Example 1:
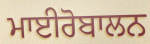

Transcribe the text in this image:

ਮਾਈਰੋਬਾਲਨ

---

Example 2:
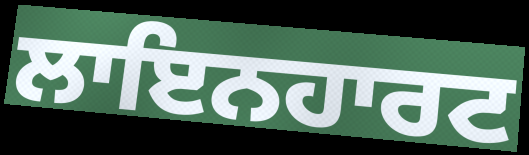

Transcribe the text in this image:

ਲਾਇਨਹਾਰਟ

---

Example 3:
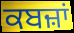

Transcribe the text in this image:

ਕਬਜ਼ਾਂ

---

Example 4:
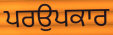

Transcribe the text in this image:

ਪਰਉਪਕਾਰ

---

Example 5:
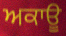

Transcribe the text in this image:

ਅਕਾਊ